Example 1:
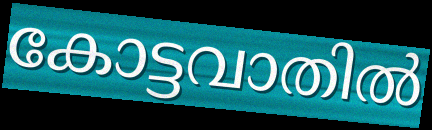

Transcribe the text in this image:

കോട്ടവാതിൽ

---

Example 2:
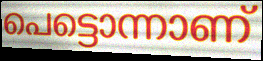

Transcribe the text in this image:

പെട്ടൊന്നാണ്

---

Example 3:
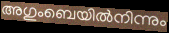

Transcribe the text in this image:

അഗുംബെയിൽനിന്നും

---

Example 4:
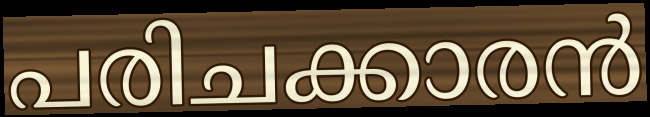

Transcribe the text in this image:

പരിചക്കാരൻ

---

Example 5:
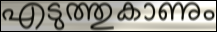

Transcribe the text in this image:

എടുത്തുകാണും